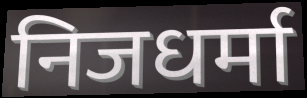
निजधर्मा